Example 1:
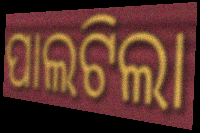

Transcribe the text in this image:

ପାଲଟିଲା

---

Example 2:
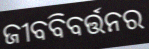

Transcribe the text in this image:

ଜୀବବିବର୍ତ୍ତନର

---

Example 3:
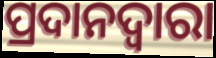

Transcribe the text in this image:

ପ୍ରଦାନଦ୍ୱାରା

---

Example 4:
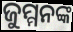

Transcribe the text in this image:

ଜୁମ୍ମନଙ୍କ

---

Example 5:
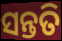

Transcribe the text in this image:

ସନ୍ତତି